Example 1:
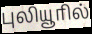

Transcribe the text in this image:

புலியூரில்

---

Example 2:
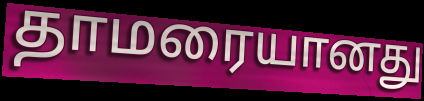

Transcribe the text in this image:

தாமரையானது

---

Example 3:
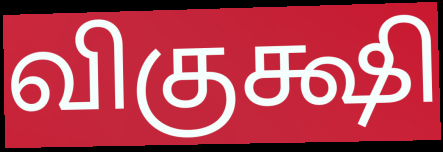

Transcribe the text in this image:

விகுக்ஷி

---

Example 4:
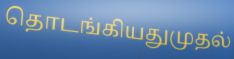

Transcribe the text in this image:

தொடங்கியதுமுதல்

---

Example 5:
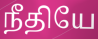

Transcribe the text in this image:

நீதியே